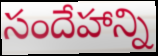
సందేహాన్ని